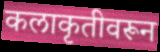
कलाकृतीवरून